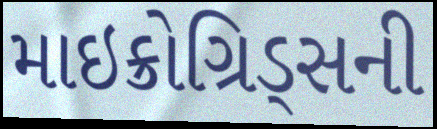
માઇક્રોગ્રિડ્સની